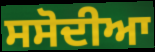
ਸਸੋਦੀਆ